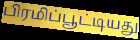
பிரமிப்பூட்டியது